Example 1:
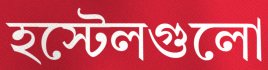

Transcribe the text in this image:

হস্টেলগুলো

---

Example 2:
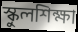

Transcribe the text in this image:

স্কুলশিক্ষা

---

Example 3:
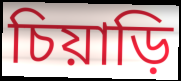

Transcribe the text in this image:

চিয়াড়ি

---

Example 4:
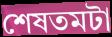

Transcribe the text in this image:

শেষতমটা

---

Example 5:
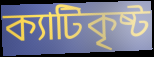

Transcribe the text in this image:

ক্যাটিকৃষ্ট